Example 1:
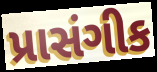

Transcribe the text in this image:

પ્રાસંગીક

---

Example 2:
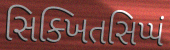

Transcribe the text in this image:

સિક્ખિતસિપ્પં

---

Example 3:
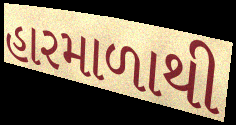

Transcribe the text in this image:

હારમાળાથી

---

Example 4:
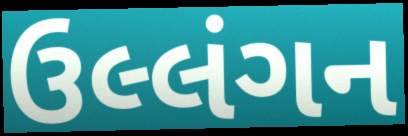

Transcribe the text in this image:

ઉલ્લંગન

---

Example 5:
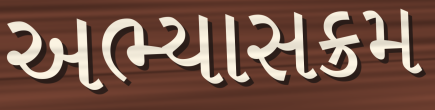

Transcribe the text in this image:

અભ્યાસક્રમ